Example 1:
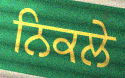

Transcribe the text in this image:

ਨਿਕਲੇ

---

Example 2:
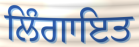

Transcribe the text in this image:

ਲਿੰਗਾਇਤ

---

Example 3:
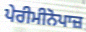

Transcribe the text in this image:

ਪੇਰੀਮੀਨੋਪਾਜ਼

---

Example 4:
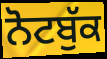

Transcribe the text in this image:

ਨੋਟਬੁੱਕ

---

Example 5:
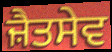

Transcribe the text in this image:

ਜ਼ੈਤਸੇਵ